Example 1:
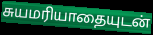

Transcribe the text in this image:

சுயமரியாதையுடன்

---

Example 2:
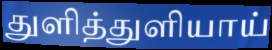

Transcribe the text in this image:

துளித்துளியாய்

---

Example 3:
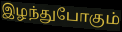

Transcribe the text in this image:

இழந்துபோகும்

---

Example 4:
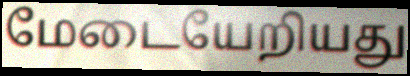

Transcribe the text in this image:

மேடையேறியது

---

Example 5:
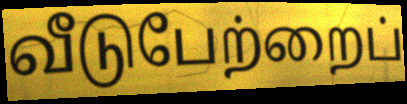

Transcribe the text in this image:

வீடுபேற்றைப்